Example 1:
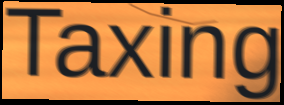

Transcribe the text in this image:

Taxing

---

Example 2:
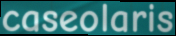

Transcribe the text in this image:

caseolaris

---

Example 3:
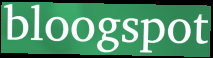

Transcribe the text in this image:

bloogspot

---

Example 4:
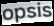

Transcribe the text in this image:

opsis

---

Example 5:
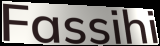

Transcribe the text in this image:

Fassihi